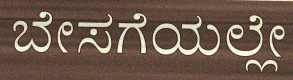
ಬೇಸಗೆಯಲ್ಲೇ